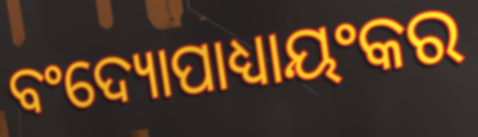
ବଂଦ୍ୟୋପାଧ୍ୟାୟଂକର